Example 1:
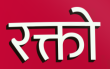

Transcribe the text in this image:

रक्तो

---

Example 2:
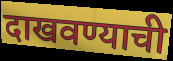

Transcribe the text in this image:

दाखवण्याची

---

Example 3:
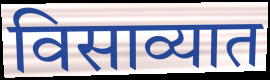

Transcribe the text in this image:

विसाव्यात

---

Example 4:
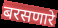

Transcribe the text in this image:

बरसणारे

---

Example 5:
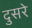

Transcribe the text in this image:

दुसरे